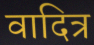
वादित्र